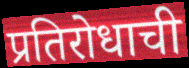
प्रतिरोधाची